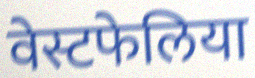
वेस्टफेलिया